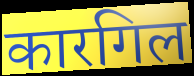
कारगिल